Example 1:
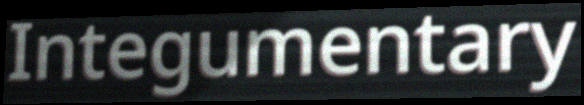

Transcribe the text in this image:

Integumentary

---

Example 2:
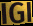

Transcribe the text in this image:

IGI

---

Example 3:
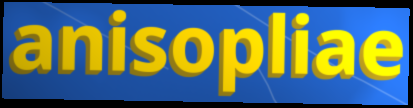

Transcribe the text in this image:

anisopliae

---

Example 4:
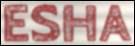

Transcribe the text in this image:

ESHA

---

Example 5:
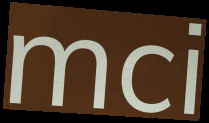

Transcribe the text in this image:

mci